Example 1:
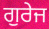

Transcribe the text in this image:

ਗੁਰੇਜ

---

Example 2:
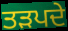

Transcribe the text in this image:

ਤੜਪਦੇ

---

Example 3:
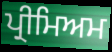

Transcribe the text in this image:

ਪ੍ਰੀਮਿਅਮ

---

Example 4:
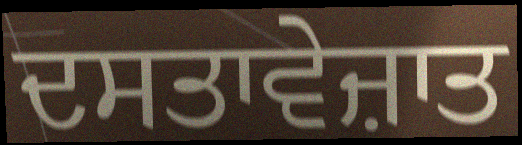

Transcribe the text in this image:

ਦਸਤਾਵੇਜ਼ਾਤ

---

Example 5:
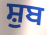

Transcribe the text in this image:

ਸ਼ੁਬ